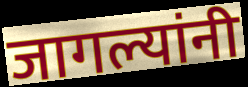
जागल्यांनी